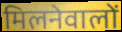
मिलनेवालों